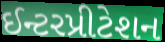
ઈન્ટરપ્રીટેશન